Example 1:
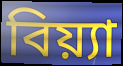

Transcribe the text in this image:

বিয়্যা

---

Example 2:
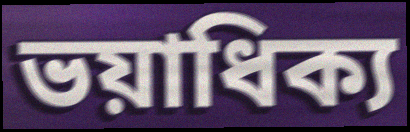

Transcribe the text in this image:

ভয়াধিক্য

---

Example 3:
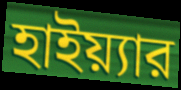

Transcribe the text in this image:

হাইয়্যার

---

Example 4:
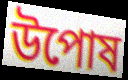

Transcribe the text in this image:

উপোষ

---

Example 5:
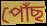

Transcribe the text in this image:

পোঁছ